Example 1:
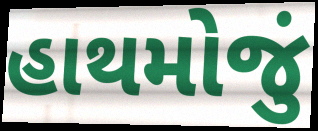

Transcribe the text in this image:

હાથમોજું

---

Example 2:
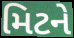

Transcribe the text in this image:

મિટને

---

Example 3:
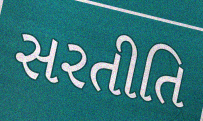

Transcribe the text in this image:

સરતીતિ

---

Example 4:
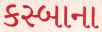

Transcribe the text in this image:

કસ્બાના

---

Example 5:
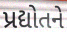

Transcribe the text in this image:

પ્રદ્યોતને